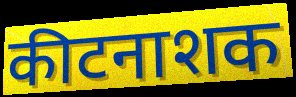
कीटनाशक